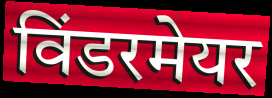
विंडरमेयर